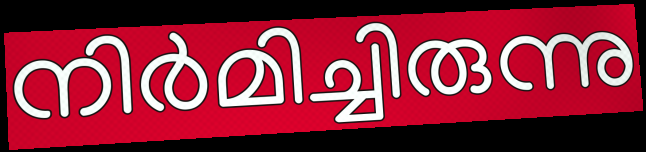
നിർമിച്ചിരുന്നു